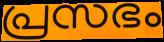
പ്രസഭം